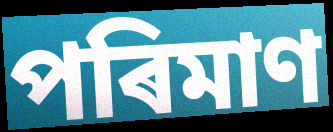
পৰিমাণ